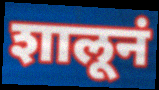
शालूनं